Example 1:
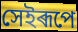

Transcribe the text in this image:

সেইৰূপে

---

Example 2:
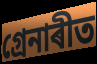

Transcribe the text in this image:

গ্ৰেনাৰীত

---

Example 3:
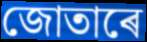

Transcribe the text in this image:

জোতাৰে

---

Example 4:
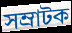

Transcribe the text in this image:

সম্ৰাটক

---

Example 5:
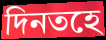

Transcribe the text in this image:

দিনতহে